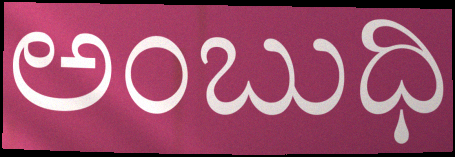
ಅಂಬುಧಿ